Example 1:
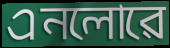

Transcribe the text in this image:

এনলোৱে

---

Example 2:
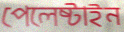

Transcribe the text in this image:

পেলেষ্টাইন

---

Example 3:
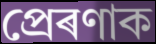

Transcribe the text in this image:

প্ৰেৰণাক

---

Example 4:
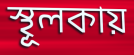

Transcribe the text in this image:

স্থূলকায়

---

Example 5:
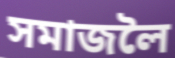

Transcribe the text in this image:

সমাজলৈ